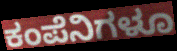
ಕಂಪೆನಿಗಳೂ